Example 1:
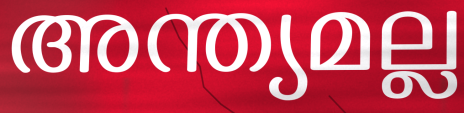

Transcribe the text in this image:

അന്ത്യമല്ല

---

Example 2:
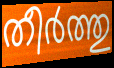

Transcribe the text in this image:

തീർത്തു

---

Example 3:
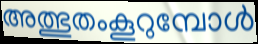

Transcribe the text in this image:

അത്ഭുതംകൂറുമ്പോൾ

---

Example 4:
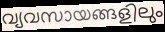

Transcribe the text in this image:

വ്യവസായങ്ങളിലും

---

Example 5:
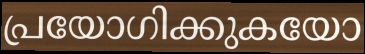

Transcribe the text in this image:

പ്രയോഗിക്കുകയോ